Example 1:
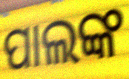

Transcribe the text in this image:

ପାଲଙ୍କ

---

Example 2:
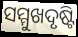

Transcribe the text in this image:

ସମ୍ମୁଖଦୃଷ୍ଟି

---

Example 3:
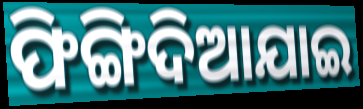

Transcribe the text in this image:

ଫିଙ୍ଗିଦିଆଯାଇ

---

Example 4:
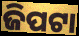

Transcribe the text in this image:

ଜିପଟା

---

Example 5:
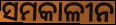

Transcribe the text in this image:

ସମକାଳୀନ